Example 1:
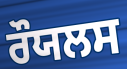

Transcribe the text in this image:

ਰੌਯਲਸ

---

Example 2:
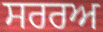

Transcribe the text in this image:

ਸਰਰਅ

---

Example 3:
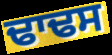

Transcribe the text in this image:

ਢਾਢਸ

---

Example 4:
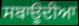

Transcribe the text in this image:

ਸਬਾਊਦੀਆ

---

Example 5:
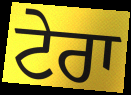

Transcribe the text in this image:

ਟੇਰਾ